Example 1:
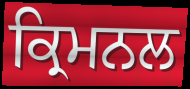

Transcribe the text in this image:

ਕ੍ਰਿਮਨਲ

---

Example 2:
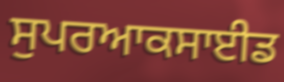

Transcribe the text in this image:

ਸੁਪਰਆਕਸਾਈਡ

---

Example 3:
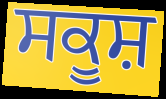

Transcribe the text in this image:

ਸਕੂਸ਼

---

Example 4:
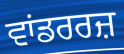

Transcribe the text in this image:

ਵਾਂਡਰਰਜ਼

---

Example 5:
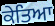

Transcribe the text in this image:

ਕੇਤਿਆ